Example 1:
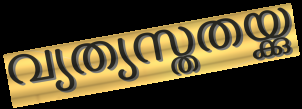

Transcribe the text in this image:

വ്യത്യസ്തതയ്ക്കു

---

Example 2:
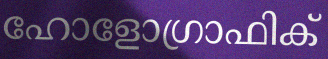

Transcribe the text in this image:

ഹോളോഗ്രാഫിക്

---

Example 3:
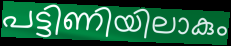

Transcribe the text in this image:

പട്ടിണിയിലാകും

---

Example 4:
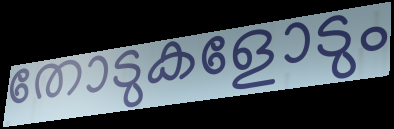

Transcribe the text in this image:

തോടുകളോടും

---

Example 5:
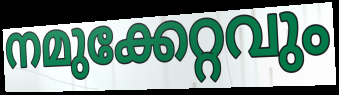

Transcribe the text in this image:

നമുക്കേറ്റവും